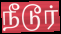
நீடூர்